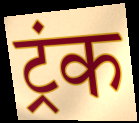
ट्रंक